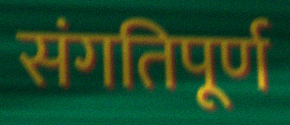
संगतिपूर्ण